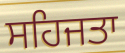
ਸਹਿਜਤਾ